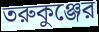
তরুকুঞ্জের